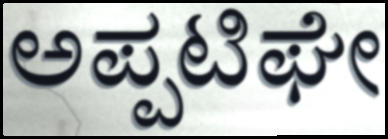
ಅಪ್ಪಟಿಘೇ